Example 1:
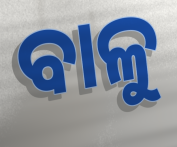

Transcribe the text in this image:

ବାଳୁ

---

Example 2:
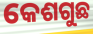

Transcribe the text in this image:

କେଶଗୁଛ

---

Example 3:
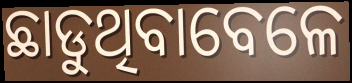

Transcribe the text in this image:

ଛାଡୁଥିବାବେଳେ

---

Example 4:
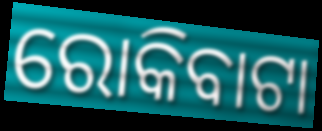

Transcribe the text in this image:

ରୋକିବାଟା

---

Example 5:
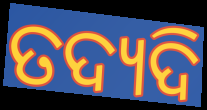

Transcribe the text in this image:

ତଦ୍ୟଦି